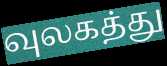
வுலகத்து